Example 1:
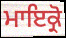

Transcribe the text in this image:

ਮਾਇਕ੍ਰੋ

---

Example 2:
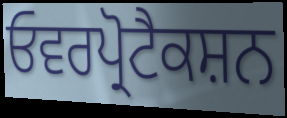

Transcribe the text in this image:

ਓਵਰਪ੍ਰੋਟੈਕਸ਼ਨ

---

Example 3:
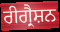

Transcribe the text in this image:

ਰੀਗ੍ਰੈਸ਼ਨ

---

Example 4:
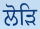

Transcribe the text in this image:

ਲੋੜਿ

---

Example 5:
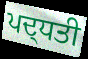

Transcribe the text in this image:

ਪਦ੍ਧਤੀ